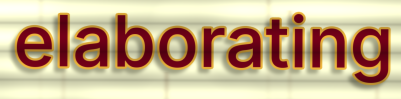
elaborating